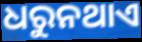
ଧରୁନଥାଏ